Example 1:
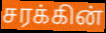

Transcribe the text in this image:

சரக்கின்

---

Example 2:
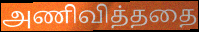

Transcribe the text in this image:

அணிவித்ததை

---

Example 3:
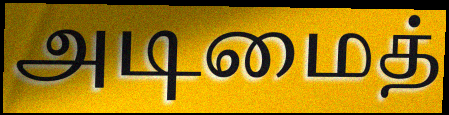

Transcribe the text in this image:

அடிமைத்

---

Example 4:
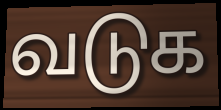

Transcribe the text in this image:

வடுக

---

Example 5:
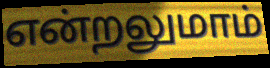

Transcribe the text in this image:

என்றலுமாம்